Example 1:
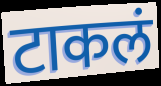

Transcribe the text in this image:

टाकलं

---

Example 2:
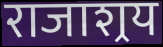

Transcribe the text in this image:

राजाश्रय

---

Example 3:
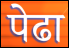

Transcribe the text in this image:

पेढा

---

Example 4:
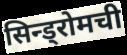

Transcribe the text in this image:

सिन्ड्रोमची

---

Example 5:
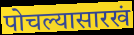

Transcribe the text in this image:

पोचल्यासारखं